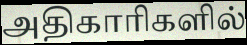
அதிகாரிகளில்